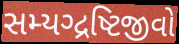
સમ્યગ્દ્રષ્ટિજીવો